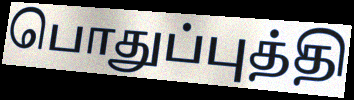
பொதுப்புத்தி